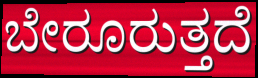
ಬೇರೂರುತ್ತದೆ